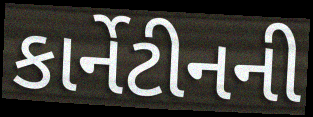
કાર્નેટીનની